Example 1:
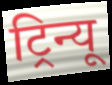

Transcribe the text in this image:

ट्रिन्यू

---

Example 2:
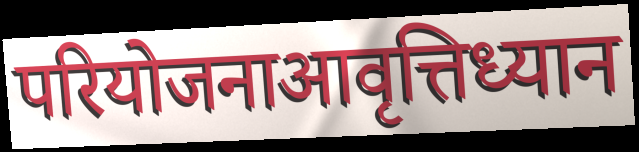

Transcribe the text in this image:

परियोजनाआवृत्तिध्यान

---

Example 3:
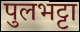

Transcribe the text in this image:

पुलभट्टा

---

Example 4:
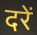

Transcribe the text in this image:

दरें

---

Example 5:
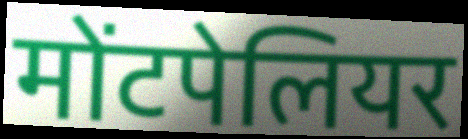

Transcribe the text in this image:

मोंटपेलियर